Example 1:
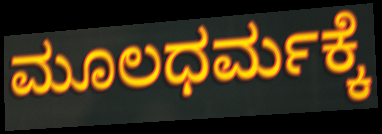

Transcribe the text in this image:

ಮೂಲಧರ್ಮಕ್ಕೆ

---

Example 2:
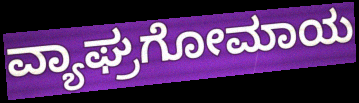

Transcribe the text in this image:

ವ್ಯಾಘ್ರಗೋಮಾಯ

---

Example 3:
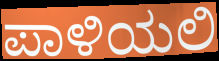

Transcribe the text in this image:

ಪಾಳಿಯಲಿ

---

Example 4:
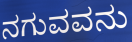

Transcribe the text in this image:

ನಗುವವನು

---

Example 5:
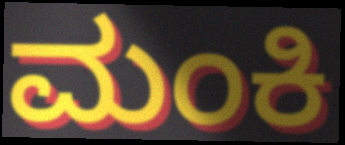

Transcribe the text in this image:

ಮಂಕಿ